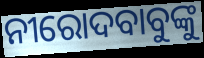
ନୀରୋଦବାବୁଙ୍କୁ